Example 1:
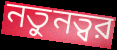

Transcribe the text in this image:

নতুনত্বর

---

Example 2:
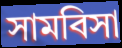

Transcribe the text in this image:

সামবিসা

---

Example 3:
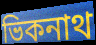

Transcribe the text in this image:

ভিকনাথ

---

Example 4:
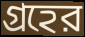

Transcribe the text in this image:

গ্রহের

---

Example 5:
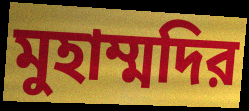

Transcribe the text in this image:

মুহাম্মদির